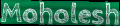
Moholesh